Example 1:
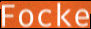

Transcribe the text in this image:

Focke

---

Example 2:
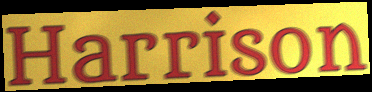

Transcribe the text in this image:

Harrison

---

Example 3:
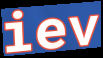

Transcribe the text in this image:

iev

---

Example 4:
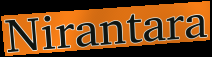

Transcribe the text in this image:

Nirantara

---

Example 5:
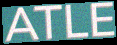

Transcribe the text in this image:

ATLE